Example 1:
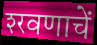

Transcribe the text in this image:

श्रवणाचें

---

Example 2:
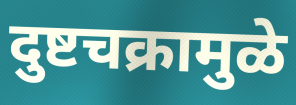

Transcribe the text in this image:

दुष्टचक्रामुळे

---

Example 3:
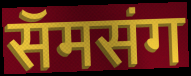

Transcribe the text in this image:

सॅमसंग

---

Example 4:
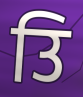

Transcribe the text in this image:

उि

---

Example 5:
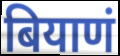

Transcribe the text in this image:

बियाणं